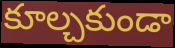
కూల్చకుండా